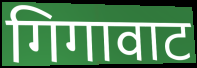
गिगावाट